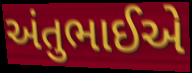
અંતુભાઈએ